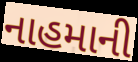
નાહમાની